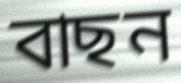
বাছন